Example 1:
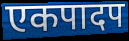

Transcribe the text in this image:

एकपादप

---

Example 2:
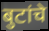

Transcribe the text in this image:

बुटांचे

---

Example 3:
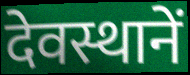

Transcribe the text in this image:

देवस्थानें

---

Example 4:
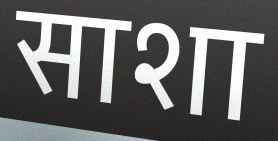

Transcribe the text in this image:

साशा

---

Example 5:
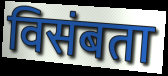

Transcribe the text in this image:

विसंबता